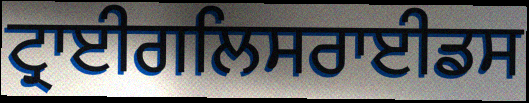
ਟ੍ਰਾਈਗਲਿਸਰਾਈਡਸ